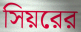
সিয়রের